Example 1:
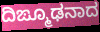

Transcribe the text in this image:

ದಿಙ್ಮೂಢನಾದ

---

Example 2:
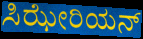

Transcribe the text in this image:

ಸಿಝೇರಿಯನ್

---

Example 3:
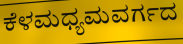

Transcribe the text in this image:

ಕೆಳಮಧ್ಯಮವರ್ಗದ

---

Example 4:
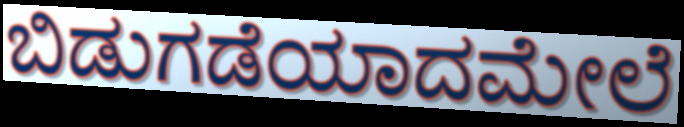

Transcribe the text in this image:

ಬಿಡುಗಡೆಯಾದಮೇಲೆ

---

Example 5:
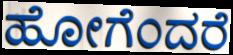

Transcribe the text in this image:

ಹೋಗೆಂದರೆ